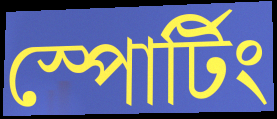
স্পোর্টিং